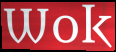
Wok